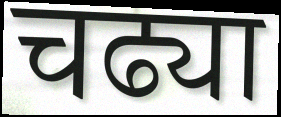
चढ्या